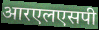
आरएलएसपी